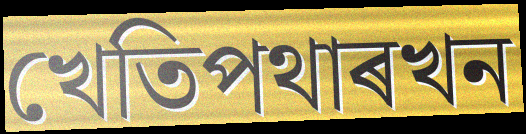
খেতিপথাৰখন